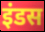
इंडस